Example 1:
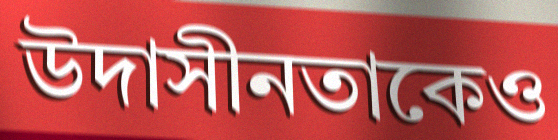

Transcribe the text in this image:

উদাসীনতাকেও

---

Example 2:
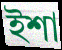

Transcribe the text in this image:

ইশা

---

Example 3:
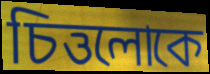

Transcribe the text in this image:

চিত্তলোকে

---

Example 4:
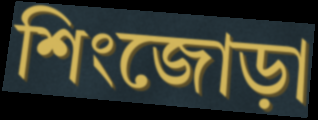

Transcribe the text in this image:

শিংজোড়া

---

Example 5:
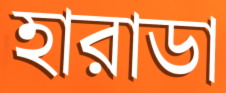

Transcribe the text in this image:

হারাডা